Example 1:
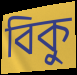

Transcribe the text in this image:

বিকু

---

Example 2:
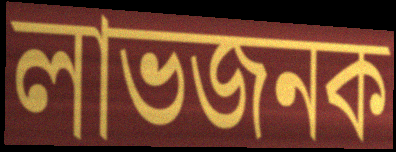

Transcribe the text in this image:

লাভজনক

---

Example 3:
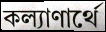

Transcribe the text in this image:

কল্যাণার্থে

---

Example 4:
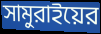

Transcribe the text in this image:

সামুরাইয়ের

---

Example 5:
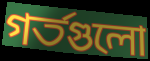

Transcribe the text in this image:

গর্তগুলো